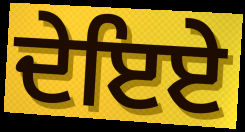
ਦੇਇਏ